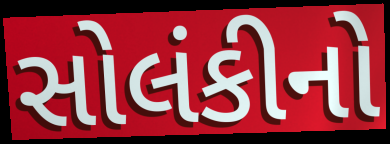
સોલંકીનો